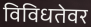
विविधतेवर